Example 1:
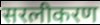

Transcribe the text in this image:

सरलीकरण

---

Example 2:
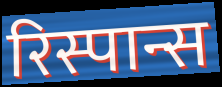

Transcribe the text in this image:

रिस्पान्स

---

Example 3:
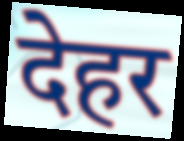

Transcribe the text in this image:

देहर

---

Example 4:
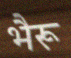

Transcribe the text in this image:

भैरू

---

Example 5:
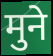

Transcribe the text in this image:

मुने